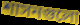
শাসনগুলো